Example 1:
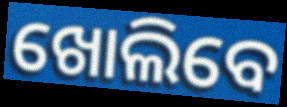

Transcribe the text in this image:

ଖୋଲିବେ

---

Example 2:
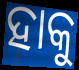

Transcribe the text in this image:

ହାକୁ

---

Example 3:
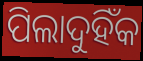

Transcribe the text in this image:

ପିଲାଦୁହିଁକ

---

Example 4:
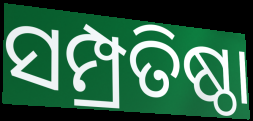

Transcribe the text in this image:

ସମ୍ପ୍ରତିଷ୍ଠା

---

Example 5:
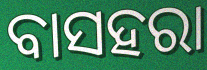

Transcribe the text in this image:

ବାସହରା